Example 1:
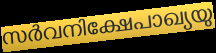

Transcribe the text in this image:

സർവനിക്ഷേപാഖ്യയു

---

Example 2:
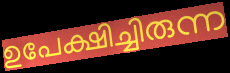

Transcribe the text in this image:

ഉപേക്ഷിച്ചിരുന്ന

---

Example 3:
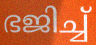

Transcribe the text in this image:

ഭജിച്ച്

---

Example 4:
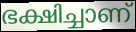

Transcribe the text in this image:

ഭക്ഷിച്ചാണ്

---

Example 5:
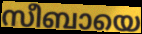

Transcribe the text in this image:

സീബായെ